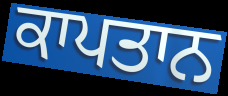
ਕਾਪਤਾਨ